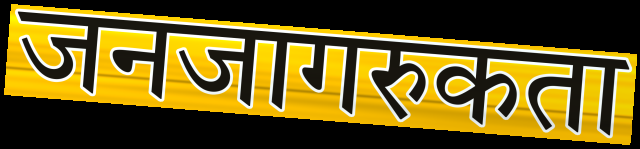
जनजागरुकता